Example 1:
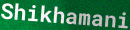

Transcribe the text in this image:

Shikhamani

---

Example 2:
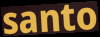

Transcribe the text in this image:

santo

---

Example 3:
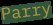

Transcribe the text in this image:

Parry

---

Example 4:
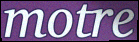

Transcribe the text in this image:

motre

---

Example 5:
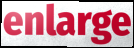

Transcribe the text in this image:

enlarge